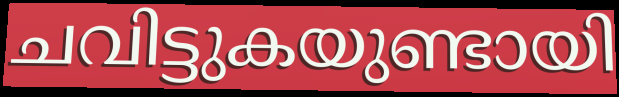
ചവിട്ടുകയുണ്ടായി